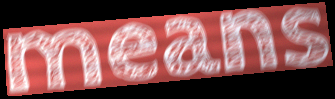
means